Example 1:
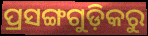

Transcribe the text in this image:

ପ୍ରସଙ୍ଗଗୁଡ଼ିକରୁ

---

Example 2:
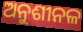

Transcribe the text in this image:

ଅନୁଶୀନଳ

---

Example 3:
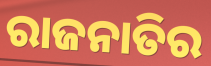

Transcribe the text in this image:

ରାଜନାତିର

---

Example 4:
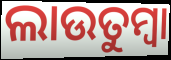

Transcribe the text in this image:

ଲାଉତୁମ୍ବା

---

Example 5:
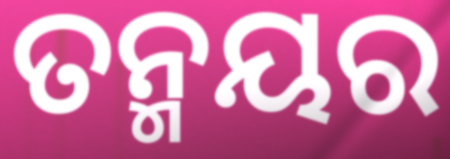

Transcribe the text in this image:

ତନ୍ମୟର